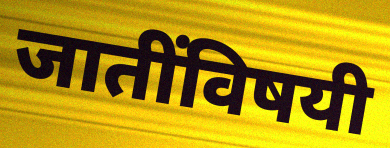
जातींविषयी